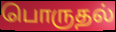
பொருதல்